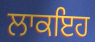
ਲਾਕਇਹ